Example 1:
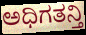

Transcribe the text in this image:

ಅಧಿಗತನ್ತಿ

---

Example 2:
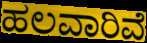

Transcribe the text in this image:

ಹಲವಾರಿವೆ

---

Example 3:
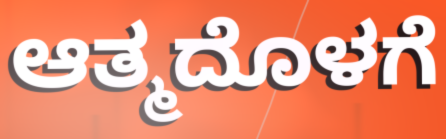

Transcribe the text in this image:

ಆತ್ಮದೊಳಗೆ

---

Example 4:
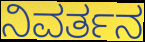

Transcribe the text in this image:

ನಿವರ್ತನ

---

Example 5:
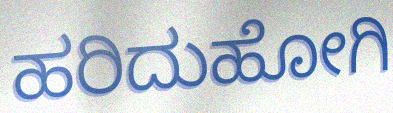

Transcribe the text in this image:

ಹರಿದುಹೋಗಿ